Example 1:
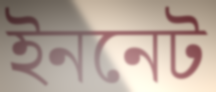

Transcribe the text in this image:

ইননেট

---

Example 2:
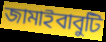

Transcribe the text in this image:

জামাইবাবুটি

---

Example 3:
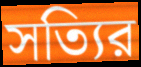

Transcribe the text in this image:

সত্যির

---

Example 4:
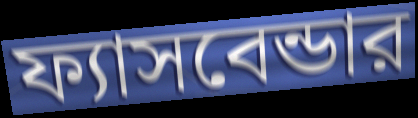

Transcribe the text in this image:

ফ্যাসবেন্ডার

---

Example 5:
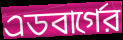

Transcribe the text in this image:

এডবার্গের